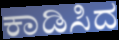
ಕಾಡಿಸಿದ